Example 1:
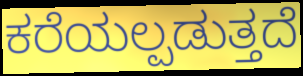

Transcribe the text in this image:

ಕರೆಯಲ್ಪಡುತ್ತದೆ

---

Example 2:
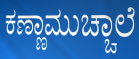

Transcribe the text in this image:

ಕಣ್ಣಾಮುಚ್ಚಾಲೆ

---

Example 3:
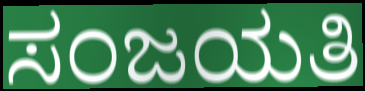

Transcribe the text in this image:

ಸಂಜಯತಿ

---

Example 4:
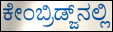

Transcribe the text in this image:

ಕೇಂಬ್ರಿಡ್ಜ್‌ನಲ್ಲಿ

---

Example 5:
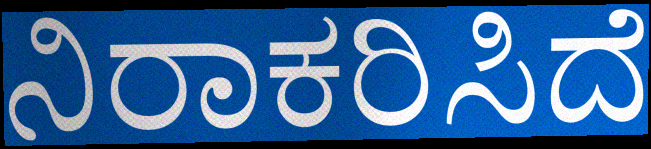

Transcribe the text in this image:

ನಿರಾಕರಿಸಿದೆ